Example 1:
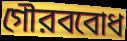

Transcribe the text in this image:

গৌরববোধ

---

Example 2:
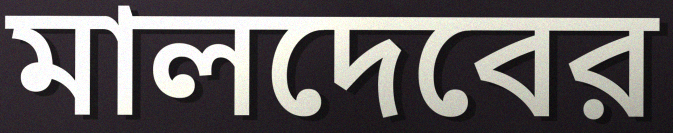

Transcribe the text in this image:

মালদেবের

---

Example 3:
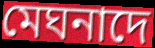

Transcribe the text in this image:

মেঘনাদে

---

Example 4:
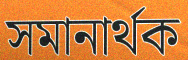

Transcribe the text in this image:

সমানার্থক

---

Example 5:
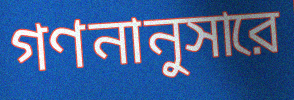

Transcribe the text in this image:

গণনানুসারে